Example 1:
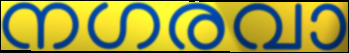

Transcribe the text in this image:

നഗരവാ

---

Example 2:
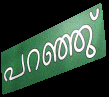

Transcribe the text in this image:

പറഞ്ഞു്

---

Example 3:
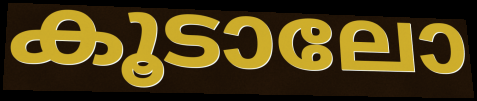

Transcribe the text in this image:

കൂടാലോ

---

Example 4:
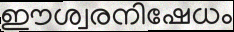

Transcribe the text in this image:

ഈശ്വരനിഷേധം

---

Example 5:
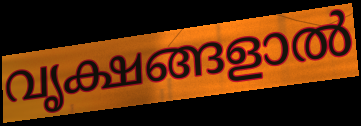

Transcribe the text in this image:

വൃക്ഷങ്ങളാൽ